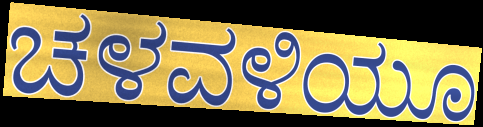
ಚಳವಳಿಯೂ